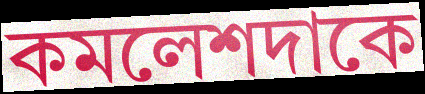
কমলেশদাকে